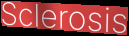
Sclerosis